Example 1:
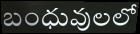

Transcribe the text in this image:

బంధువులలో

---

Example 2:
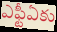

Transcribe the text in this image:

ఎఫ్టీఏకు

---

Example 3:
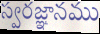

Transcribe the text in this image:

స్వరజ్ఞానము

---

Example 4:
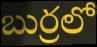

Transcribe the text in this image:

బుర్రలో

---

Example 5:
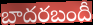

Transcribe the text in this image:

బాదరబందీ